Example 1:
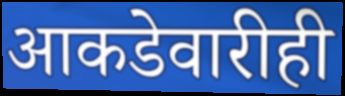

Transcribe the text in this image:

आकडेवारीही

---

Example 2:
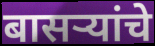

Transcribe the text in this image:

बासऱ्यांचे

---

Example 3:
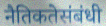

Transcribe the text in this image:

नैतिकतेसंबंधी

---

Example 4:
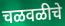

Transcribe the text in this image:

चळवळीचे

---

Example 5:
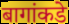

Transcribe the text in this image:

बागांकडे